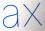
ax